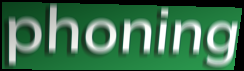
phoning